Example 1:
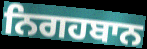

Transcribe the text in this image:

ਨਿਗਹਬਾਨ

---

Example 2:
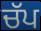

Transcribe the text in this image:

ਚੱਪ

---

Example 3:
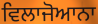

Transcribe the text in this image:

ਵਿਲਾਜੋਆਨਾ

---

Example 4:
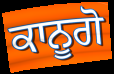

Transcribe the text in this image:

ਕਾਨੂਗੋ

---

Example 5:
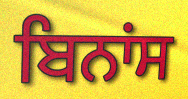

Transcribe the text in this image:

ਬਿਨਾਂਸ